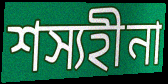
শস্যহীনা